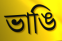
ভাঙি